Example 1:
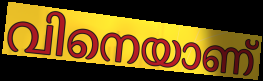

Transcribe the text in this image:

വിനെയാണ്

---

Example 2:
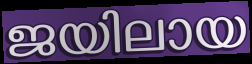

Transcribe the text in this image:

ജയിലായ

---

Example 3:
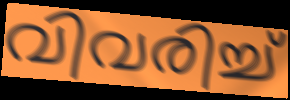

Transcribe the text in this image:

വിവരിച്ച്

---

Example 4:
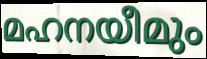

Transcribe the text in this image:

മഹനയീമും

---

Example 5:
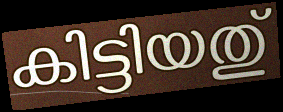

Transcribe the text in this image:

കിട്ടിയതു്